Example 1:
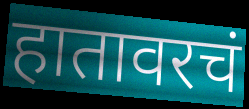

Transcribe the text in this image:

हातावरचं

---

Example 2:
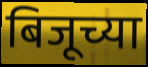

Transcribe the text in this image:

बिजूच्या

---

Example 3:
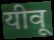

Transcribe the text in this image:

यीवू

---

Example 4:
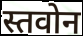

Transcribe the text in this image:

स्तवोन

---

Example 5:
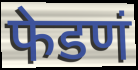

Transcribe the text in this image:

फेडणं